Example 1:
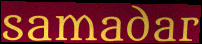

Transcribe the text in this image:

samadar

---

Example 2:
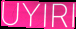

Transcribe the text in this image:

UYIRI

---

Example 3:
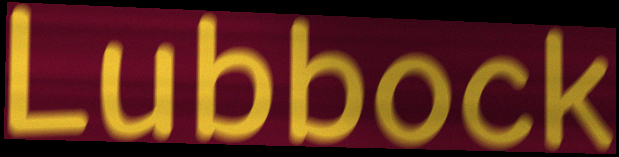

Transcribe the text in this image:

Lubbock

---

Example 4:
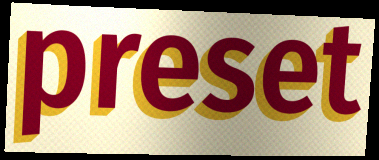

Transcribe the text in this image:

preset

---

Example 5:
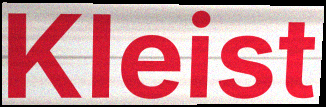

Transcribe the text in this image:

Kleist